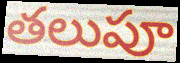
తలుపూ